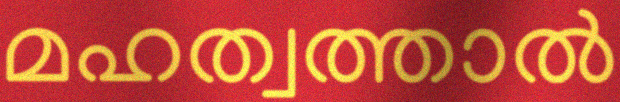
മഹത്വത്താൽ